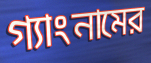
গ্যাংনামের